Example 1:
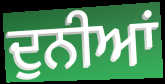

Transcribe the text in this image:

ਦੁਨੀਆਂ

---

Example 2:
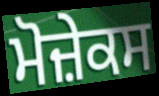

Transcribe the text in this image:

ਮੋਜ਼ੇਕਸ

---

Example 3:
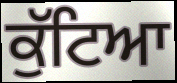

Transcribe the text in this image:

ਕੁੱਟਿਆ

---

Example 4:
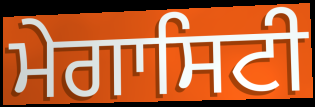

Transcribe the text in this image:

ਮੇਗਾਸਿਟੀ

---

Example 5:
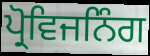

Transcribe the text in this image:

ਪ੍ਰੋਵਿਜਨਿੰਗ